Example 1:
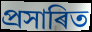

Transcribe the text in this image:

প্ৰসাৰিত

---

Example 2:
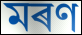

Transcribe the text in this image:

মৰণ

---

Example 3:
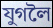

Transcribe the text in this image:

যুগলৈ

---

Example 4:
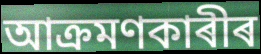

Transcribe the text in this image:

আক্ৰমণকাৰীৰ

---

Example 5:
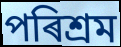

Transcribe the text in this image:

পৰিশ্ৰম